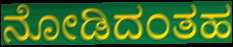
ನೋಡಿದಂತಹ